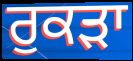
ਰੁਕੜਾ